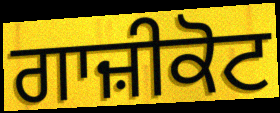
ਗਾਜ਼ੀਕੋਟ